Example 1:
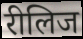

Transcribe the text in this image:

रीलिज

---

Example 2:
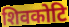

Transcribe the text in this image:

शिवकोटि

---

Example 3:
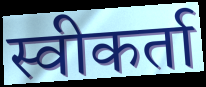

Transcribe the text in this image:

स्वीकर्ता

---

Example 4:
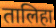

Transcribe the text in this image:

तालिहा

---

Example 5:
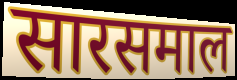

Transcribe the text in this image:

सारसमाल